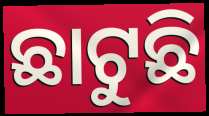
ଛାଟୁଛି